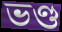
ভণ্ড